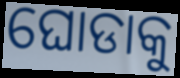
ଘୋଡାକୁ